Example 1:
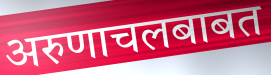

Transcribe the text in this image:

अरुणाचलबाबत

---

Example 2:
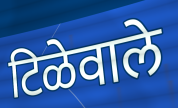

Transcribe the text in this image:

टिळेवाले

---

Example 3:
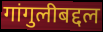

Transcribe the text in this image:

गांगुलीबद्दल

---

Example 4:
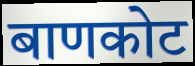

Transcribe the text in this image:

बाणकोट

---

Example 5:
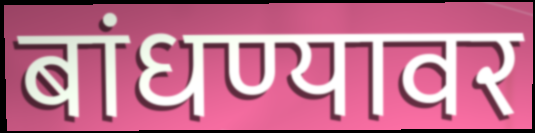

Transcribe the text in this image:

बांधण्यावर